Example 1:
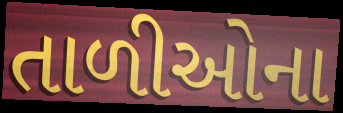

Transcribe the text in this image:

તાળીઓના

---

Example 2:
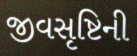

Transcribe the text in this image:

જીવસૃષ્ટિની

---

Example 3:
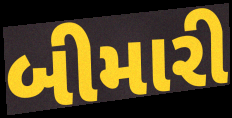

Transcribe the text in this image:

બીમારી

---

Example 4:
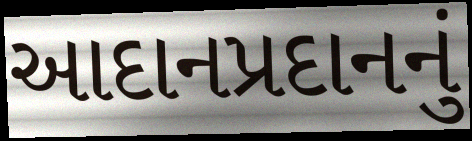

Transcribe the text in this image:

આદાનપ્રદાનનું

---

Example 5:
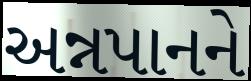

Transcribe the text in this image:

અન્નપાનને